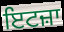
ਇਟਜ਼ਾ